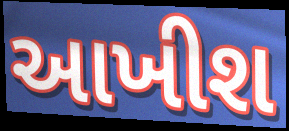
આખીશ